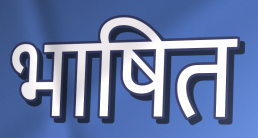
भाषित